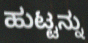
ಹುಟ್ಟನ್ನು